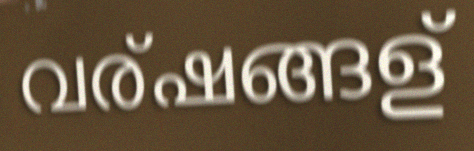
വര്ഷങ്ങള്